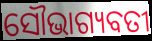
ସୌଭାଗ୍ୟବତୀ